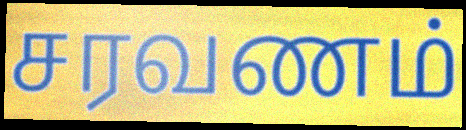
சரவணம்